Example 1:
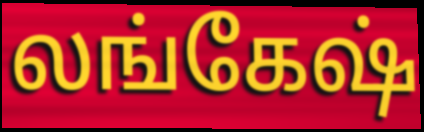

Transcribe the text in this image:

லங்கேஷ்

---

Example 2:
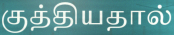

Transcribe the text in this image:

குத்தியதால்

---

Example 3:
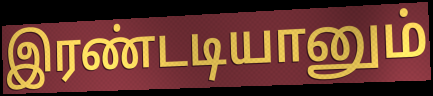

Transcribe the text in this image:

இரண்டடியானும்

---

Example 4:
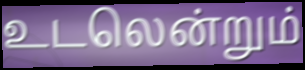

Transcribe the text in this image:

உடலென்றும்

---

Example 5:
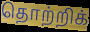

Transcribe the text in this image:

தொற்றிக்